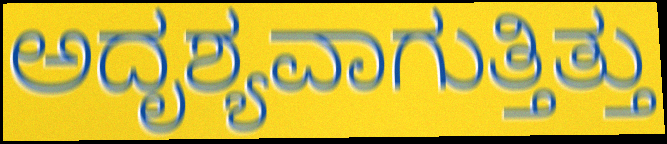
ಅದೃಶ್ಯವಾಗುತ್ತಿತ್ತು